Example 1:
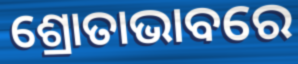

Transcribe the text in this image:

ଶ୍ରୋତାଭାବରେ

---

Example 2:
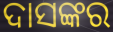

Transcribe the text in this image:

ଦାସଙ୍କର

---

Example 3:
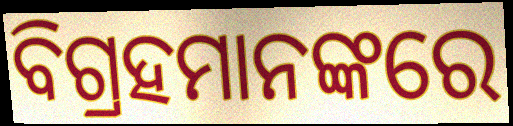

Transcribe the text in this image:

ବିଗ୍ରହମାନଙ୍କରେ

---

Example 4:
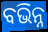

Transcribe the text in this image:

ବଭିନ୍ନ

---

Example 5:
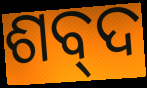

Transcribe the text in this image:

ଶବ୍‌ଦ